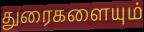
துரைகளையும்